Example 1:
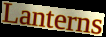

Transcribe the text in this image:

Lanterns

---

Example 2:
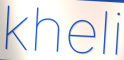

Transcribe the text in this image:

kheli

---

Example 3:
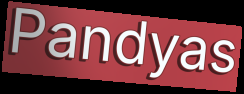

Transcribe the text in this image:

Pandyas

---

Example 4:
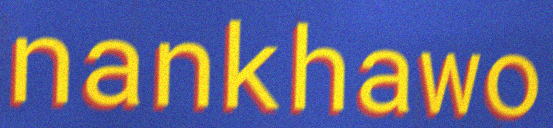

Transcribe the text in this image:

nankhawo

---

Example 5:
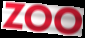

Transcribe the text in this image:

ZOO